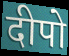
दीपो